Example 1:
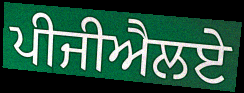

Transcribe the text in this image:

ਪੀਜੀਐਲਏ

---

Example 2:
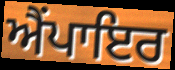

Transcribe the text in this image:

ਐਂਪਾਇਰ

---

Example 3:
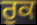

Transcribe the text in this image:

ਰੁਕ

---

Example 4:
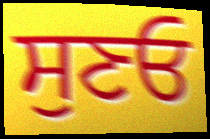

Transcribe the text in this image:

ਸੁਣਓ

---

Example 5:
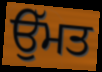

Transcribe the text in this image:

ਉੱਮਤ